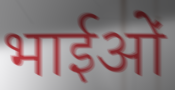
भाईओं